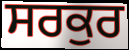
ਸਰਕੁਰ